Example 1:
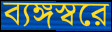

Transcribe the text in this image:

ব্যঙ্গস্বরে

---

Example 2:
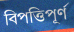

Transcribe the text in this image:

বিপত্তিপূর্ণ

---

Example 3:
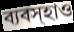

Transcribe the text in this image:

ব্যবস্হাও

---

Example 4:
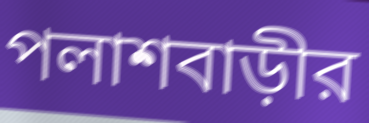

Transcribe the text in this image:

পলাশবাড়ীর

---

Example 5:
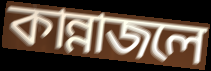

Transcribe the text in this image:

কান্নাজলে